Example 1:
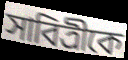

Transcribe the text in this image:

সাবিত্রীকে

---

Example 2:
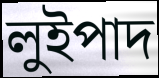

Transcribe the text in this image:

লুইপাদ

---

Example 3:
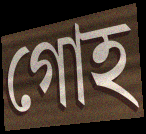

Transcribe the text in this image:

গোহ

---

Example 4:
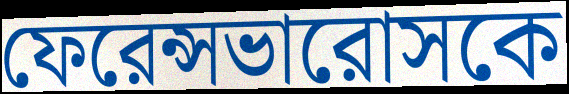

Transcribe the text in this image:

ফেরেন্সভারোসকে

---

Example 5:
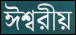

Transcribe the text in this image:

ঈশ্বরীয়